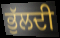
ਭੁੱਲਦੀ